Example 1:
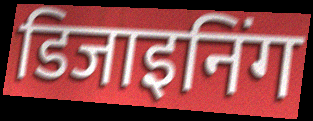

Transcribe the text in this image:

डिजाइनिंग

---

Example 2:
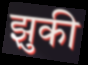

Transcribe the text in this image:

झुकी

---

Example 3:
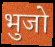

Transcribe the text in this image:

भुजो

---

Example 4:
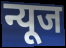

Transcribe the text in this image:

न्यूज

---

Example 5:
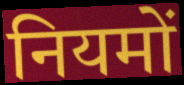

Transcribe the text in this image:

नियमों